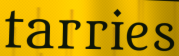
tarries